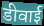
डीवाई